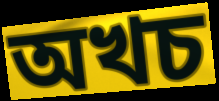
অখচ